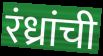
रंध्रांची